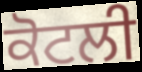
ਕੋਟਲੀ